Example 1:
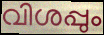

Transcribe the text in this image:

വിശപ്പും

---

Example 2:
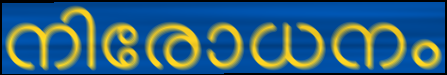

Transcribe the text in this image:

നിരോധനം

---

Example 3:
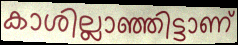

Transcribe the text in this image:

കാശില്ലാഞ്ഞിട്ടാണ്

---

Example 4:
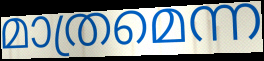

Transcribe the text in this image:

മാത്രമെന്ന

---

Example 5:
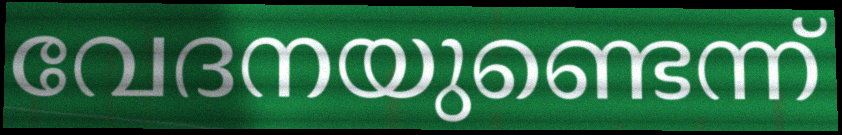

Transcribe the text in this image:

വേദനയുണ്ടെന്ന്